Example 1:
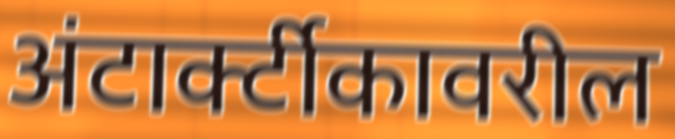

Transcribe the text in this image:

अंटार्क्टीकावरील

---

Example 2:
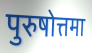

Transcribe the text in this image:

पुरुषोत्तमा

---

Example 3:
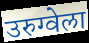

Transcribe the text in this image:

उरुग्वेला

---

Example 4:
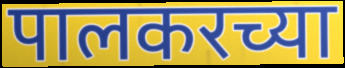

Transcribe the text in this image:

पालकरच्या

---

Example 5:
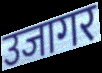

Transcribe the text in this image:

उजागर